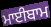
ਮਾਈਬਾਮ